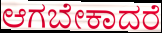
ಆಗಬೇಕಾದರೆ